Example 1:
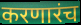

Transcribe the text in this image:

करणारंच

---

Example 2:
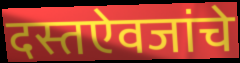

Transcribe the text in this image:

दस्तऐवजांचे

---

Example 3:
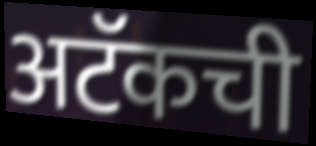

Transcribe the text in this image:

अटॅकची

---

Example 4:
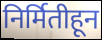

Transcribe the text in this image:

निर्मितीहून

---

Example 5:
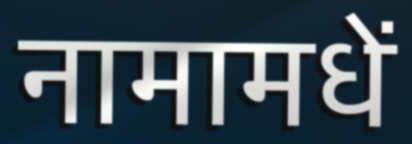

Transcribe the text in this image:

नामामधें